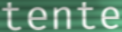
tente